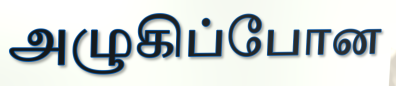
அழுகிப்போன